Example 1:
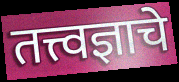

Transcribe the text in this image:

तत्त्वज्ञाचे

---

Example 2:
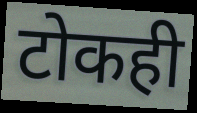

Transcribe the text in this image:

टोकही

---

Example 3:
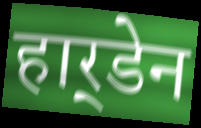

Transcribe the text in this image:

हार्डेन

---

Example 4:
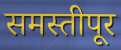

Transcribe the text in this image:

समस्तीपूर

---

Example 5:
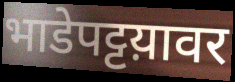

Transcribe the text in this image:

भाडेपट्टय़ावर